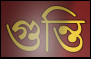
গুন্তি